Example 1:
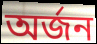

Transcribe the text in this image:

অর্জন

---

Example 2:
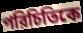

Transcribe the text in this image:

পরিচিতিকে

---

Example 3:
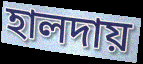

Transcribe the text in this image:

হালদায়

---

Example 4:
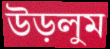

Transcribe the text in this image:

উড়লুম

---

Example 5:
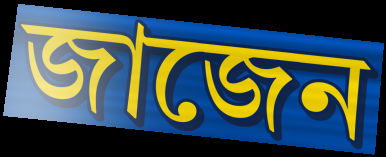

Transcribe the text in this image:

জাজেন